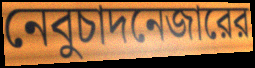
নেবুচাদনেজারের